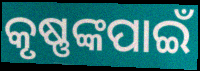
କୃଷ୍ଣଙ୍କପାଇଁ